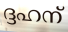
ദ്ദഹന്